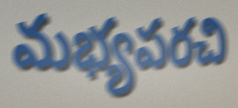
మభ్యపరచి